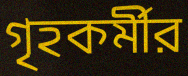
গৃহকর্মীর